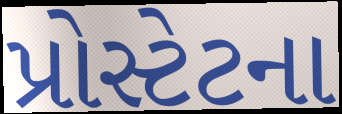
પ્રોસ્ટેટના